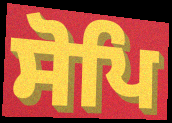
ਸੋਪਿ